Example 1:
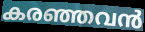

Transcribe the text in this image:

കരഞ്ഞവൻ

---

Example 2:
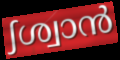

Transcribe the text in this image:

ഽശ്വാൻ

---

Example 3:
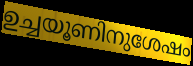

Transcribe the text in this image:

ഉച്ചയൂണിനുശേഷം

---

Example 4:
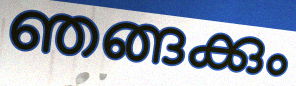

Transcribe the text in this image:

ഞങ്ങക്കും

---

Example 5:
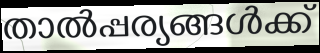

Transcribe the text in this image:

താൽപ്പര്യങ്ങൾക്ക്